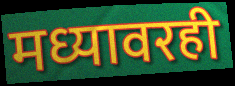
मध्यावरही